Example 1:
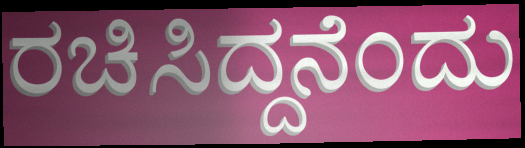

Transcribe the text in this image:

ರಚಿಸಿದ್ದನೆಂದು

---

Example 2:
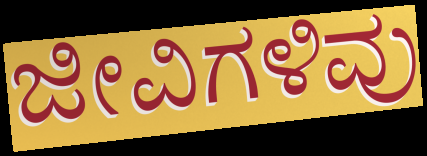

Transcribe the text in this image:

ಜೀವಿಗಳಿವು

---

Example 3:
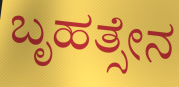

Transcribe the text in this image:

ಬೃಹತ್ಸೇನ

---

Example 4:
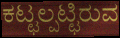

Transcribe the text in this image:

ಕಟ್ಟಲ್ಪಟ್ಟಿರುವ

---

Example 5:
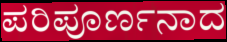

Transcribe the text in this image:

ಪರಿಪೂರ್ಣನಾದ